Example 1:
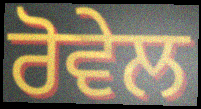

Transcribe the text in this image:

ਰੋਵੇਲ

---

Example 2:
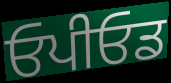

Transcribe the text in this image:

ਓਪੀਓਡ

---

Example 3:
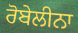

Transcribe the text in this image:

ਰੋਬੇਲੀਨਾ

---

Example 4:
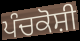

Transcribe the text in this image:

ਪੰਚਕੋਸ਼ੀ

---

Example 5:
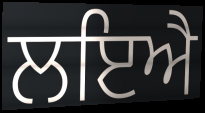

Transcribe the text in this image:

ਲਇਐ